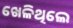
ଖେଳିଥିଲେ